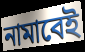
নামাবেই